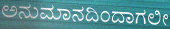
ಅನುಮಾನದಿಂದಾಗಲೀ